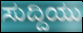
ಸುದ್ದಿಯು